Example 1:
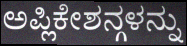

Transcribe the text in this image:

ಅಪ್ಲಿಕೇಶನ್ಗಳನ್ನು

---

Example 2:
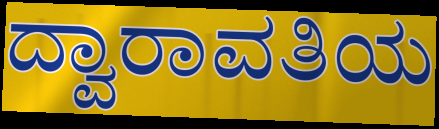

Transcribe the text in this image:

ದ್ವಾರಾವತಿಯ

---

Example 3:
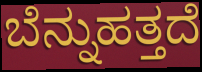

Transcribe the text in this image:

ಬೆನ್ನುಹತ್ತದೆ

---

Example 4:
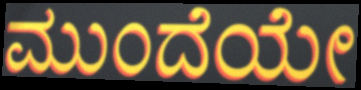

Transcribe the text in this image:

ಮುಂದೆಯೇ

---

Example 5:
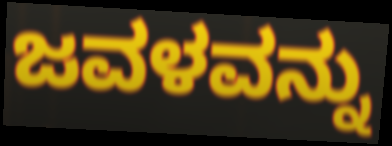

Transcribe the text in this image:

ಜವಳವನ್ನು